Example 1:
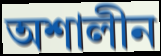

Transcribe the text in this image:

অশালীন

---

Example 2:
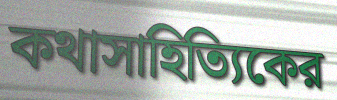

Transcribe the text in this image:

কথাসাহিত্যিকের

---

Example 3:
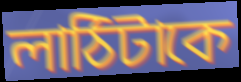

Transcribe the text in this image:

লাঠিটাকে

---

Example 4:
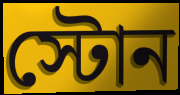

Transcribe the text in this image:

স্টোন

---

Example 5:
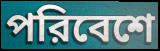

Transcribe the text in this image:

পরিবেশে